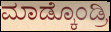
ಮಾಡ್ಕೊಂಡ್ರಿ